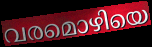
വരമൊഴിയെ